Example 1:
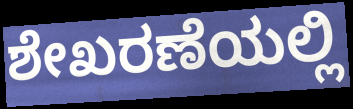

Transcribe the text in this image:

ಶೇಖರಣೆಯಲ್ಲಿ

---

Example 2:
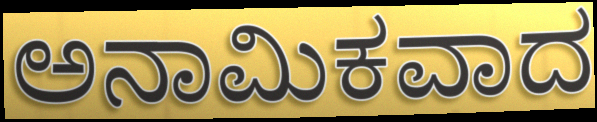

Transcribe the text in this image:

ಅನಾಮಿಕವಾದ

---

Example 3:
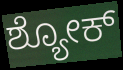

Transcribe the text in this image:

ಶ್ಯೋಕ್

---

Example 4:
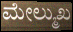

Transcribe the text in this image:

ಮೇಲ್ಮುಖ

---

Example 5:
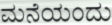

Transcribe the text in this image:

ಮನೆಯಂದು